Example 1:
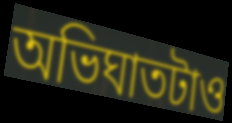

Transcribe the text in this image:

অভিঘাতটাও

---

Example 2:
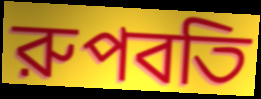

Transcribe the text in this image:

রুপবতি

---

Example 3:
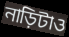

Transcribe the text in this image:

নাড়িটাও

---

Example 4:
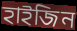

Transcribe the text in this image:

হাইজিন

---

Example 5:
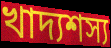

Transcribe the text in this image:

খাদ্যশস্য